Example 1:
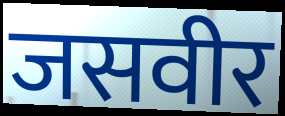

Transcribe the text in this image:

जसवीर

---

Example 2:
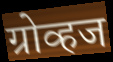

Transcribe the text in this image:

ग्रोव्हज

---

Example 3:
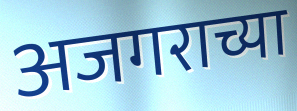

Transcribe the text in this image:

अजगराच्या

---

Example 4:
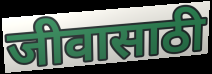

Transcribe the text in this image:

जीवासाठी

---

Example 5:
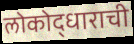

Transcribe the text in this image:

लोकोद्धाराची